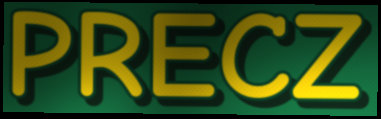
PRECZ